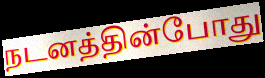
நடனத்தின்போது